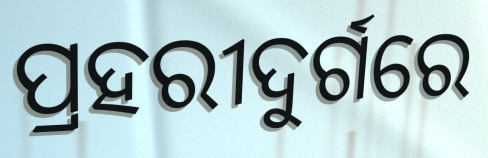
ପ୍ରହରୀଦୁର୍ଗରେ